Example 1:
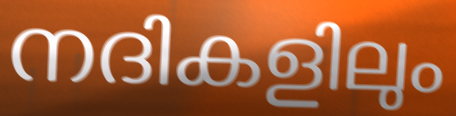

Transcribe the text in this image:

നദികളിലും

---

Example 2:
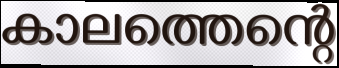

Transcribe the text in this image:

കാലത്തെന്റെ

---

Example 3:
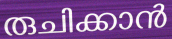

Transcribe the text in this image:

രുചിക്കാൻ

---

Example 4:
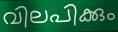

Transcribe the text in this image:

വിലപിക്കും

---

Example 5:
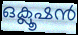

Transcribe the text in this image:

ഒക്ലൂഷൻ